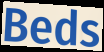
Beds